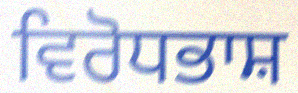
ਵਿਰੋਧਭਾਸ਼